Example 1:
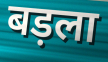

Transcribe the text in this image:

बड़ला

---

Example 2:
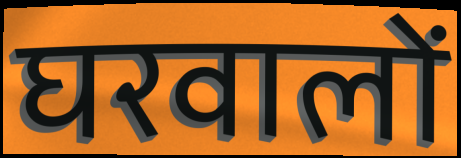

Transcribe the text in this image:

घरवालों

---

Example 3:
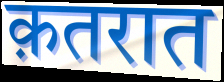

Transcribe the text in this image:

क़तरात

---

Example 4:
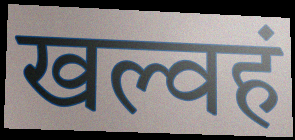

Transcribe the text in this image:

खल्वहं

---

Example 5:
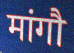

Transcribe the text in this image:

मांगौ